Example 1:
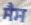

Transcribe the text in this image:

ਸੈਸ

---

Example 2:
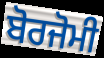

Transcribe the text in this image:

ਬੋਰਜੋਮੀ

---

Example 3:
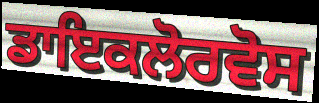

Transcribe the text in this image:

ਡਾਇਕਲੋਰਵੋਸ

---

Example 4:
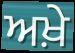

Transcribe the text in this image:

ਅਖ਼ੇ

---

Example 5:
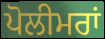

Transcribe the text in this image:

ਪੋਲੀਮਰਾਂ